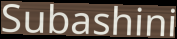
Subashini